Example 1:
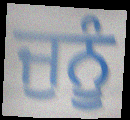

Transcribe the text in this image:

ਜੁਨੂੰ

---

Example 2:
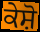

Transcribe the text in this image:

ਕੇਸ਼ੋ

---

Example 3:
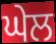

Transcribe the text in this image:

ਘੇਲ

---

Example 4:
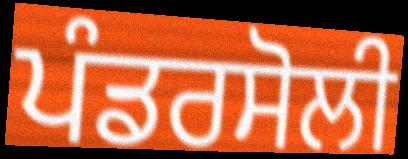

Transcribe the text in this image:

ਪੰਡਰਸੋਲੀ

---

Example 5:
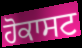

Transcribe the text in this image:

ਹੋਕਾਸਟ